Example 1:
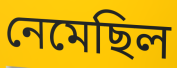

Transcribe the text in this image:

নেমেছিল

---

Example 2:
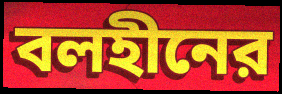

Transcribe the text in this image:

বলহীনের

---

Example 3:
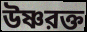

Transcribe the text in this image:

উষ্ণরক্ত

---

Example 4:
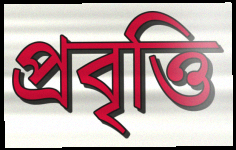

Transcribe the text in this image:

প্রবৃত্তি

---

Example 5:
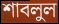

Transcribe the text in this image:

শাবলুল